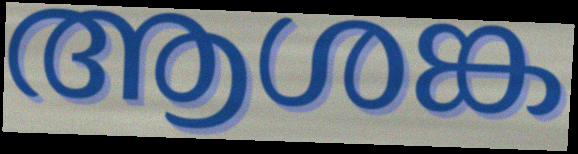
ആശങ്ക